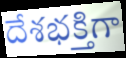
దేశభక్తిగా